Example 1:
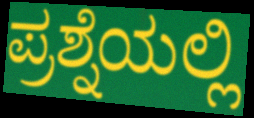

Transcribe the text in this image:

ಪ್ರಶ್ನೆಯಲ್ಲಿ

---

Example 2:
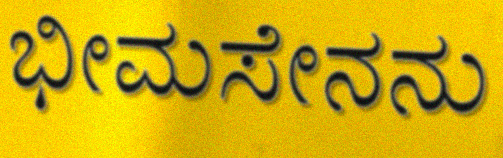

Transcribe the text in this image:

ಭೀಮಸೇನನು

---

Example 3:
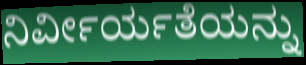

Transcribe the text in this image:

ನಿರ್ವೀರ್ಯತೆಯನ್ನು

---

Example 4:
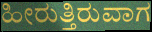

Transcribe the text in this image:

ಹೀರುತ್ತಿರುವಾಗ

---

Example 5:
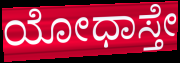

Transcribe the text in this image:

ಯೋಧಾಸ್ತೇ